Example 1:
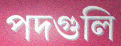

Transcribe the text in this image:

পদগুলি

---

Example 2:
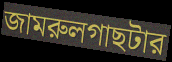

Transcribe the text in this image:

জামরুলগাছটার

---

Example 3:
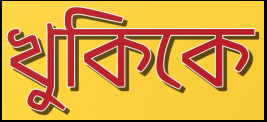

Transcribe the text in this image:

খুকিকে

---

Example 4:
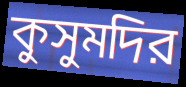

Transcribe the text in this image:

কুসুমদির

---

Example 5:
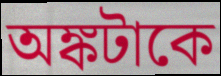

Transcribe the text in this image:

অঙ্কটাকে